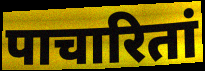
पाचारितां